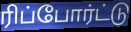
ரிப்போர்ட்டு